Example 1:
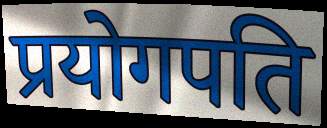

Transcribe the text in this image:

प्रयोगपति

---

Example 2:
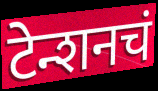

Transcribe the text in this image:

टेन्शनचं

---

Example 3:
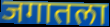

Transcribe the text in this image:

जगातला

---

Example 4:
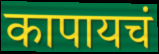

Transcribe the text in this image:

कापायचं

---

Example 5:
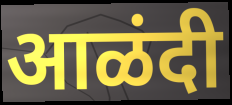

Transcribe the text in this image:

आळंदी